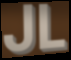
JL